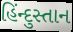
હિંન્દુસ્તાન